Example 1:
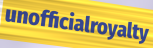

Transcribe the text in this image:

unofficialroyalty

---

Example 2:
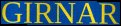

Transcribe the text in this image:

GIRNAR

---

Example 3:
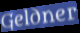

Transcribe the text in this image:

Geldner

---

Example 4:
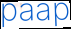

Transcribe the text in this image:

paap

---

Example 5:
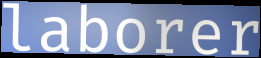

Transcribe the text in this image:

laborer